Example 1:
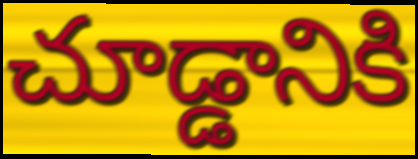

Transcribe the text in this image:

చూడ్డానికి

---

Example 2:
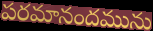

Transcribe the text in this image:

పరమానందమును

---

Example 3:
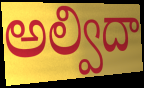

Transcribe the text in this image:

అల్విదా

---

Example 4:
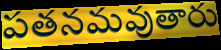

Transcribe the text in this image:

పతనమవుతారు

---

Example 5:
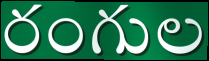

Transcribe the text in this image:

రంగుల